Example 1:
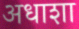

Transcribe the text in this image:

अधाशा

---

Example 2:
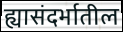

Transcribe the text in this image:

ह्यासंदर्भातील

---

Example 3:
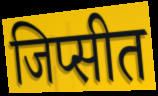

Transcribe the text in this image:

जिप्सीत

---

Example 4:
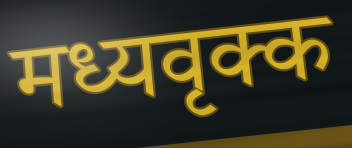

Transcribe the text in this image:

मध्यवृक्क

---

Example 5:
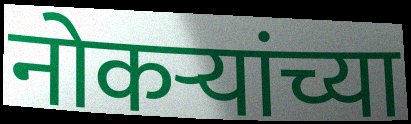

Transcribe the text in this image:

नोकर्‍यांच्या